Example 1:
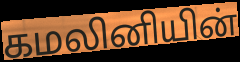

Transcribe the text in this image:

கமலினியின்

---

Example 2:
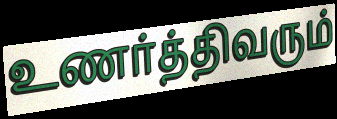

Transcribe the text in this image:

உணர்த்திவரும்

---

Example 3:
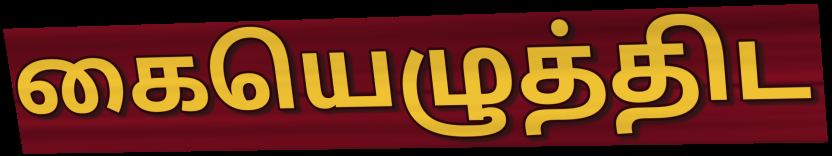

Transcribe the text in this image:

கையெழுத்திட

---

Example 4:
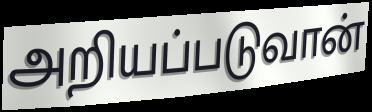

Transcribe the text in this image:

அறியப்படுவான்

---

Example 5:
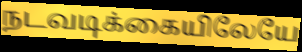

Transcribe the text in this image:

நடவடிக்கையிலேயே